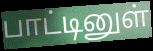
பாட்டினுள்